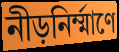
নীড়নির্ম্মাণে